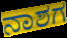
ನಾಶಗ